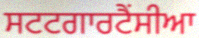
ਸਟਟਗਾਰਟੈਂਸੀਆ